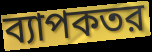
ব্যাপকতর